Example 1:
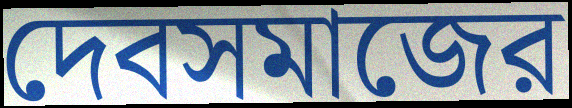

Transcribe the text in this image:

দেবসমাজের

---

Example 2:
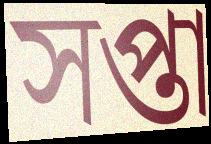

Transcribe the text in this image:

সপ্তা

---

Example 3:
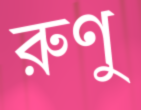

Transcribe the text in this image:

রুণু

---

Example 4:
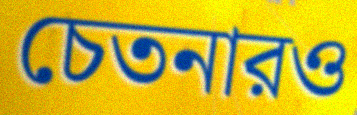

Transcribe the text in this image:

চেতনারও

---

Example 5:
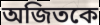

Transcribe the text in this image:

অজিতকে